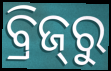
ବ୍ରିଜ୍‌ରୁ